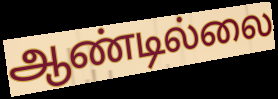
ஆண்டில்லை